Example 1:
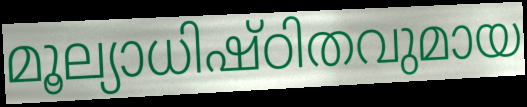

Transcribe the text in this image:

മൂല്യാധിഷ്ഠിതവുമായ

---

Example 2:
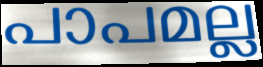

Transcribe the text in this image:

പാപമല്ല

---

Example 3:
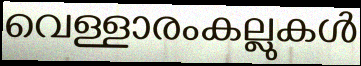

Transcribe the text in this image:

വെള്ളാരംകല്ലുകൾ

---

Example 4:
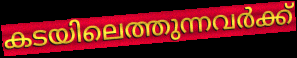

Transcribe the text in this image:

കടയിലെത്തുന്നവർക്ക്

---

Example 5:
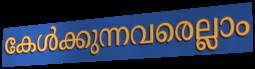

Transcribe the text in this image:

കേൾക്കുന്നവരെല്ലാം